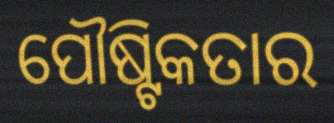
ପୌଷ୍ଟିକତାର